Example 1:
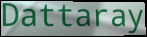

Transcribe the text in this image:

Dattaray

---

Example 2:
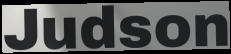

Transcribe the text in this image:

Judson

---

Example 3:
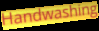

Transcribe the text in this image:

Handwashing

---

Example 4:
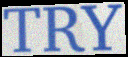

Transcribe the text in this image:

TRY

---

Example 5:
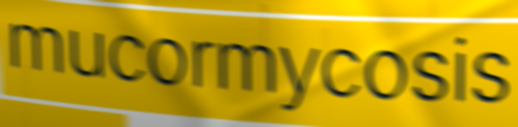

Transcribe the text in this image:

mucormycosis